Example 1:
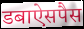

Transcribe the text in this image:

डबाऐसपैस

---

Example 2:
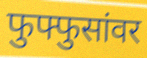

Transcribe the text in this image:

फुफ्फुसांवर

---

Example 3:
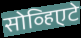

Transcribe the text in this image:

सोव्हिएटे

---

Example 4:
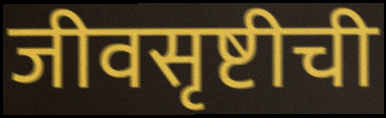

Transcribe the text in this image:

जीवसृष्टीची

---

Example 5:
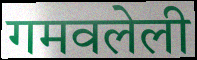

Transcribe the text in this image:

गमवलेली